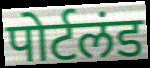
पोर्टलंड